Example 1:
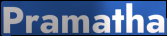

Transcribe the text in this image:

Pramatha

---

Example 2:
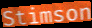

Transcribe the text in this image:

Stimson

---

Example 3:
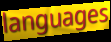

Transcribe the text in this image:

languages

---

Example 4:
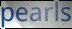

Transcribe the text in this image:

pearls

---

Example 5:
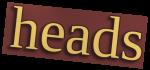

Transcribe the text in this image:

heads